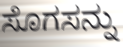
ಸೊಗಸನ್ನು